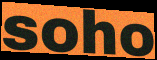
soho